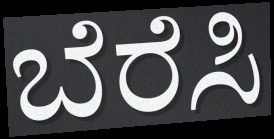
ಬೆರೆಸಿ